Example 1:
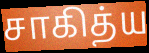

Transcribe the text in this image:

சாகித்ய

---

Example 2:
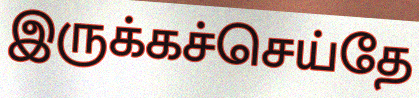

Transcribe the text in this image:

இருக்கச்செய்தே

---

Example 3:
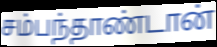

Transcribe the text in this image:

சம்பந்தாண்டான்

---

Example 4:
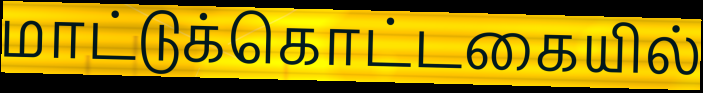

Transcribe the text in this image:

மாட்டுக்கொட்டகையில்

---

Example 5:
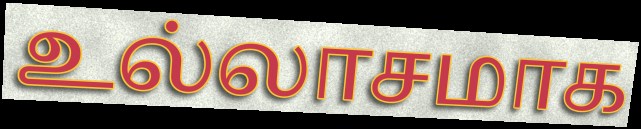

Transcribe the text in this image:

உல்லாசமாக